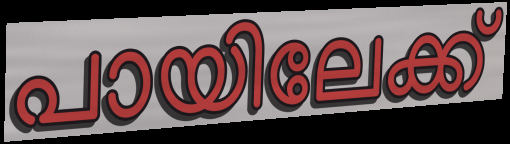
പായിലേക്ക്